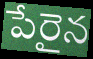
పేరైన